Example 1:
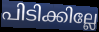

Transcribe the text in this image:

പിടിക്കില്ലേ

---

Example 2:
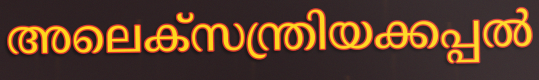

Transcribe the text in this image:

അലെക്സന്ത്രിയക്കപ്പൽ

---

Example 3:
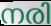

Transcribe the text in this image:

നരി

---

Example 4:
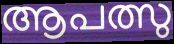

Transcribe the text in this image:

ആപത്സു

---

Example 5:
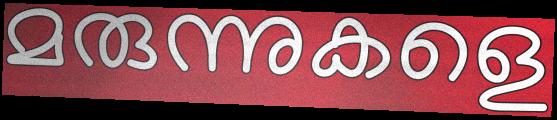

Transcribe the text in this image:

മരുന്നുകളെ